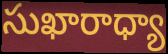
సుఖారాధ్యా